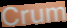
Crum